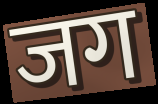
जग